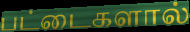
பட்டைகளால்